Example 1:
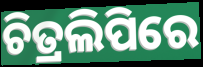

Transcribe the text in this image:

ଚିତ୍ରଲିପିରେ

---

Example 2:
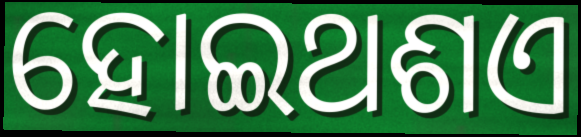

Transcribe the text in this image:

ହୋଇଥଶଏ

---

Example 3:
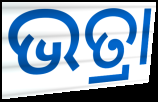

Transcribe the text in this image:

ଭତ୍ରା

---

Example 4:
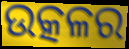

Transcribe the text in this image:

ଉତ୍କଳର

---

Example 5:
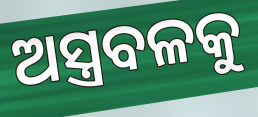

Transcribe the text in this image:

ଅସ୍ତ୍ରବଳକୁ